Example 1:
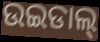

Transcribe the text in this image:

ଉଇଡାଲ୍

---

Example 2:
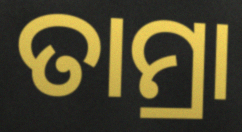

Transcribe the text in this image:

ତାମ୍ରା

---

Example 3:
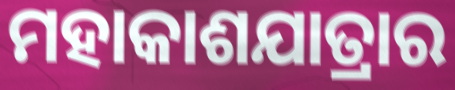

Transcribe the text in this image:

ମହାକାଶଯାତ୍ରାର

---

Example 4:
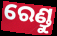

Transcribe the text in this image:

ରେଣ୍ଡୁ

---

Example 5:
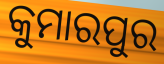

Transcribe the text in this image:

କୁମାରପୁର